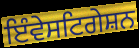
ਇੰਵੇਸਟਿਗੇਸ਼ਨ